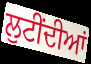
ਲੁਟੀਂਦੀਆਂ